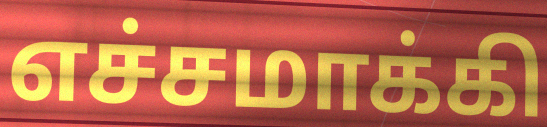
எச்சமாக்கி